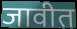
जावीत